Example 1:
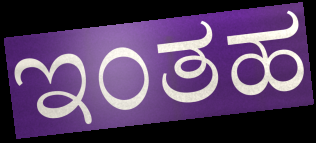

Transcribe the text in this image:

ಇಂತಹ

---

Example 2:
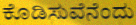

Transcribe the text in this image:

ಕೊಡಿಸುವೆನೆಂದು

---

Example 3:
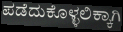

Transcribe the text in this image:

ಪಡೆದುಕೊಳ್ಳಲಿಕ್ಕಾಗಿ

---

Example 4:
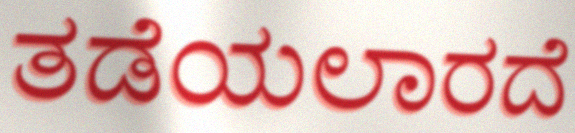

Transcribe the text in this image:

ತಡೆಯಲಾರದೆ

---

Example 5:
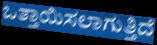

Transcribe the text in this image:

ಒತ್ತಾಯಿಸಲಾಗುತ್ತಿದೆ